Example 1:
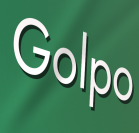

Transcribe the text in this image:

Golpo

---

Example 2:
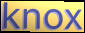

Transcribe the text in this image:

knox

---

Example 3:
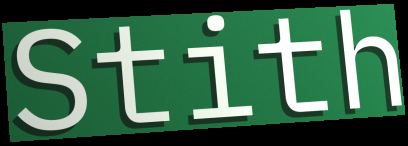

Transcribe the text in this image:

Stith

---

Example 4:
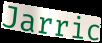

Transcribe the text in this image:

Jarric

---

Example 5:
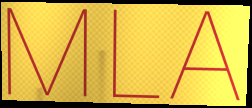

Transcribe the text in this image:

MLA